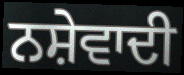
ਨਸ਼ੇਵਾਦੀ